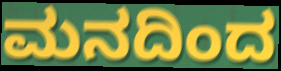
ಮನದಿಂದ